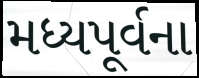
મધ્યપૂર્વના